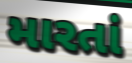
મારતાં